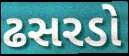
ઢસરડો